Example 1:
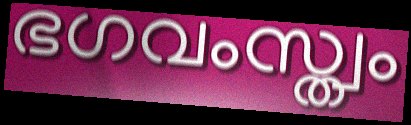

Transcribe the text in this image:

ഭഗവംസ്ത്വം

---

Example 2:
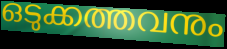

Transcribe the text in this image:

ഒടുക്കത്തവനും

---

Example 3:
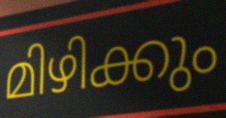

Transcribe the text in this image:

മിഴിക്കും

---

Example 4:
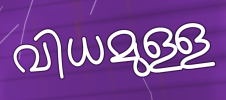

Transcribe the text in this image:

വിധമുള്ള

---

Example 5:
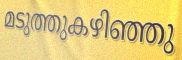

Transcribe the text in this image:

മടുത്തുകഴിഞ്ഞു